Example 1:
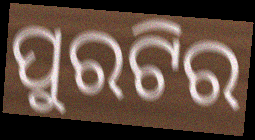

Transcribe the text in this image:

ପୁରଟିର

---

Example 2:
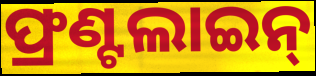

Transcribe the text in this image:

ଫ୍ରଣ୍ଟଲାଇନ୍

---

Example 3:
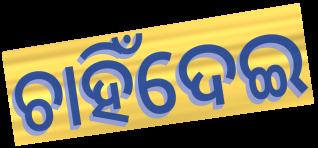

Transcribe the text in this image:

ଚାହିଁଦେଇ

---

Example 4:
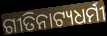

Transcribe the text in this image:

ଗୀତିନାଟ୍ୟଧର୍ମୀ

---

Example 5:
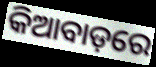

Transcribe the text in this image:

କିଆବାଡ଼ରେ